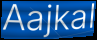
Aajkal